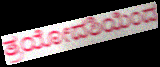
ತ್ರಯೋದಶಿಯಿಂದ